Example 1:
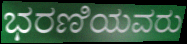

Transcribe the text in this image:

ಭರಣಿಯವರು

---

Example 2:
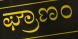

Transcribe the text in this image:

ಘ್ರಾಣಂ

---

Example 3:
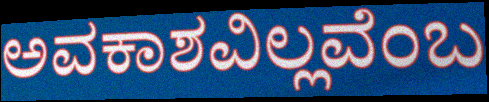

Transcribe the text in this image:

ಅವಕಾಶವಿಲ್ಲವೆಂಬ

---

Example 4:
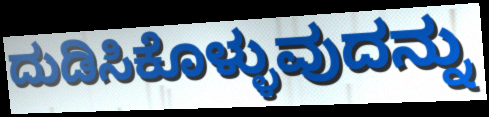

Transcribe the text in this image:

ದುಡಿಸಿಕೊಳ್ಳುವುದನ್ನು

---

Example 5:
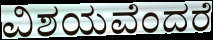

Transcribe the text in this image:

ವಿಶಯವೆಂದರೆ